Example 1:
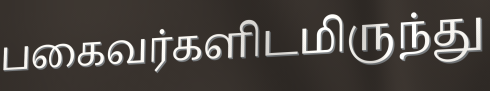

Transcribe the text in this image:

பகைவர்களிடமிருந்து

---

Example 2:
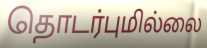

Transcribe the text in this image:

தொடர்புமில்லை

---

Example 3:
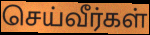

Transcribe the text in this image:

செய்வீர்கள்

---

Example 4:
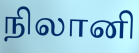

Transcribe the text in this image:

நிலானி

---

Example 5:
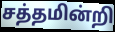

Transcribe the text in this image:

சத்தமின்றி